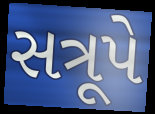
સત્રૂપે